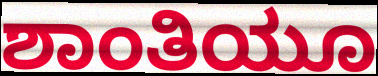
ಶಾಂತಿಯೂ